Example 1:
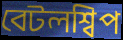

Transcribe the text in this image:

বেটলশ্বিপ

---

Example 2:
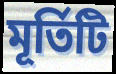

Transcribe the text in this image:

মূৰ্তিটি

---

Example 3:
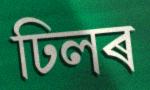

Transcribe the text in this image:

ঢিলৰ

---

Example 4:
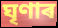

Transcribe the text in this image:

ঘৃণাৰ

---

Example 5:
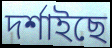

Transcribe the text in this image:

দৰ্শাইছে